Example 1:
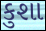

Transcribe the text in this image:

કુશા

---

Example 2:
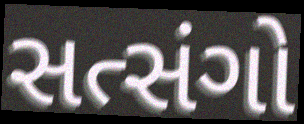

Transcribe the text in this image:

સત્સંગો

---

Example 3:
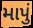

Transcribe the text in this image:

માપું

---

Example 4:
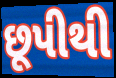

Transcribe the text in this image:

છૂપીથી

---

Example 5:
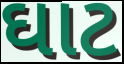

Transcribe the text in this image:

ઘાટ